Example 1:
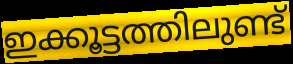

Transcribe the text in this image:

ഇക്കൂട്ടത്തിലുണ്ട്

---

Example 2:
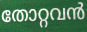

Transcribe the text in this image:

തോറ്റവൻ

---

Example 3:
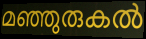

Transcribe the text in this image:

മഞ്ഞുരുകൽ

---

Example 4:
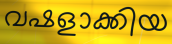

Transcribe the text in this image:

വഷളാക്കിയ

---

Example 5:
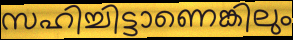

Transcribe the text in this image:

സഹിച്ചിട്ടാണെങ്കിലും